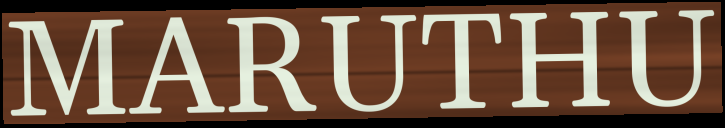
MARUTHU